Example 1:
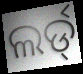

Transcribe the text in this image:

ଲର୍ଡ୍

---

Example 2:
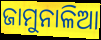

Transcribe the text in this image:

ଜାମୁନାଳିଆ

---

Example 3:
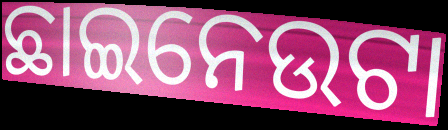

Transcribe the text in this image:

ଛାଇନେଉଟା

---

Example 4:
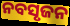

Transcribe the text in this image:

ନବସୃଜନ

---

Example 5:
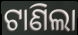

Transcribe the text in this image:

ଟାଣିଲା